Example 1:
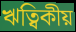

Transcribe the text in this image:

ঋত্বিকীয়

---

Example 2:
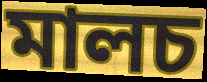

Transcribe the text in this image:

মালচ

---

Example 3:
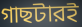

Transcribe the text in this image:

গাছটারই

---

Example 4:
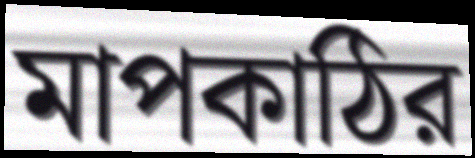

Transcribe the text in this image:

মাপকাঠির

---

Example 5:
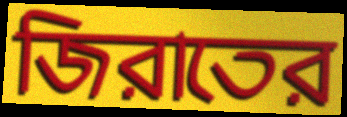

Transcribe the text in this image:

জিরাতের